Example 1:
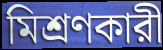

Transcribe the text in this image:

মিশ্রণকারী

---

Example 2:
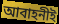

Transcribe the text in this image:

আবাহনীই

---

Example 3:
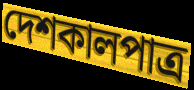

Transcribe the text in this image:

দেশকালপাত্র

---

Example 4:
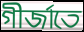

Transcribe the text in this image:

গীর্জাতে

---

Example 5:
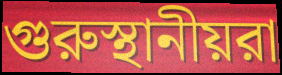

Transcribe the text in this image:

গুরুস্থানীয়রা